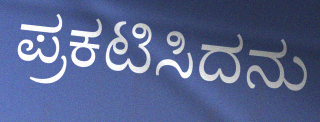
ಪ್ರಕಟಿಸಿದನು